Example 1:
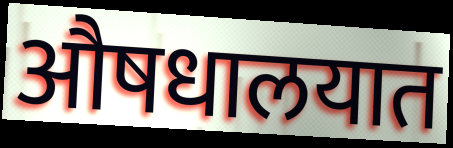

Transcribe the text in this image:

औषधालयात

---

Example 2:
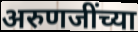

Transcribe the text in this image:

अरुणजींच्या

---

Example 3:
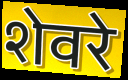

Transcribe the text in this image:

शेवरे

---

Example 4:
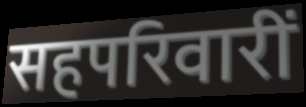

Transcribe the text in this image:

सहपरिवारीं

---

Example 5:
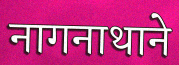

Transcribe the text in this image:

नागनाथाने